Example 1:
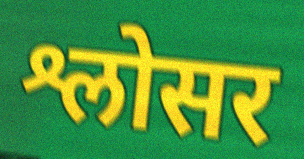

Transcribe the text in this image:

श्लोसर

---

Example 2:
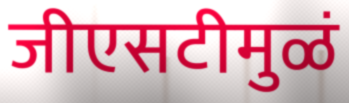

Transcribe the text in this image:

जीएसटीमुळं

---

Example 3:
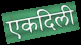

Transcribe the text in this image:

एकदिली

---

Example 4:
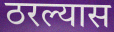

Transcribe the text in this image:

ठरल्यास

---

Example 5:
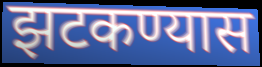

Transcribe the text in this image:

झटकण्यास